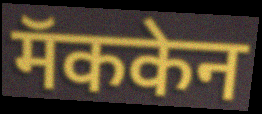
मॅककेन